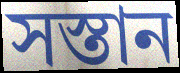
সস্তান